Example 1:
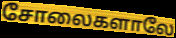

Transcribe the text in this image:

சோலைகளாலே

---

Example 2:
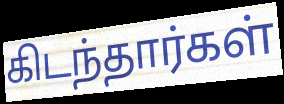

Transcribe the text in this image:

கிடந்தார்கள்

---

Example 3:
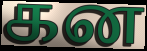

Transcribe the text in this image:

கன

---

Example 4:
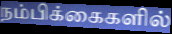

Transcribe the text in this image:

நம்பிக்கைகளில்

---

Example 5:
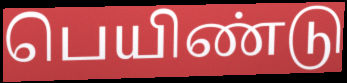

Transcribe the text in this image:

பெயிண்டு